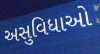
અસુવિધાઓ